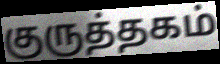
குருத்தகம்